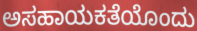
ಅಸಹಾಯಕತೆಯೊಂದು